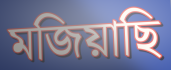
মজিয়াছি